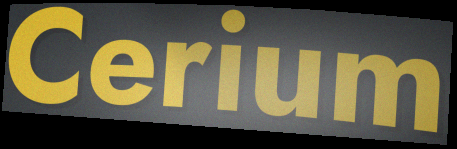
Cerium